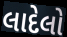
લાદેલો